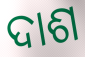
ଦାଶ